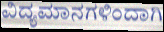
ವಿದ್ಯಮಾನಗಳಿಂದಾಗಿ